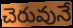
చెరువునే